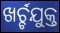
ଖର୍ଚ୍ଚଯୁକ୍ତ